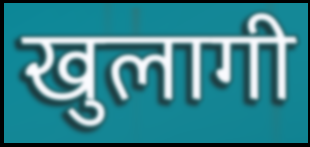
खुलागी